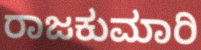
ರಾಜಕುಮಾರಿ